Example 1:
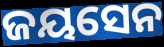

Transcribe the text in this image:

ଜୟସେନ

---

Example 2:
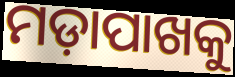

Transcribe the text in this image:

ମଡ଼ାପାଖକୁ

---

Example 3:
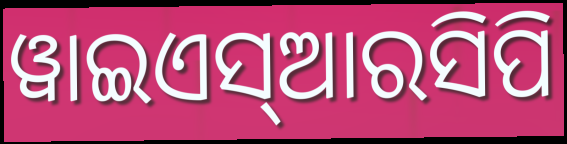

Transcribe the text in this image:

ୱାଇଏସ୍ଆରସିପି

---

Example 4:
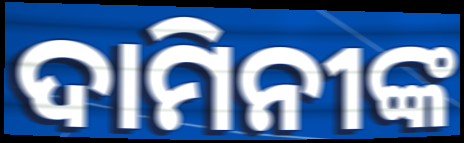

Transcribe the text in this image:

ଦାମିନୀଙ୍କ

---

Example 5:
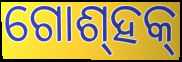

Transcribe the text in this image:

ଗୋଶ୍‍ହକ୍